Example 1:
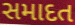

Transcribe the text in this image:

સમાદત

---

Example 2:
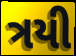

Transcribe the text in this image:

ત્રયી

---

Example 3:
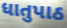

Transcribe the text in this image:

ધાતુપાઠ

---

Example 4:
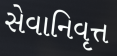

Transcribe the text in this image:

સેવાનિવૃત્ત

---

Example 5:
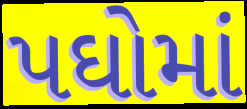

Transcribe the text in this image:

પઘોમાં